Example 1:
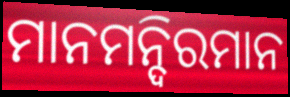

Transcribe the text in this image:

ମାନମନ୍ଦିରମାନ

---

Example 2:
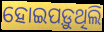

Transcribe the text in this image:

ହୋଇପଡ଼ୁଥିଲି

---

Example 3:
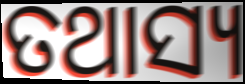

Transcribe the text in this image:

ତଥାସ୍ୟ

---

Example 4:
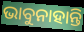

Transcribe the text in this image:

ଭାବୁନାହାନ୍ତି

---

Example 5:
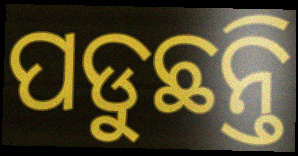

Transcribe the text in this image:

ପଡୁଛନ୍ତି